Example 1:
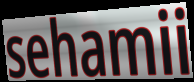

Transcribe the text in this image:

sehamii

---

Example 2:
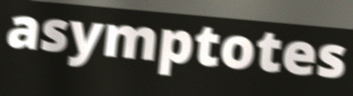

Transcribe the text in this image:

asymptotes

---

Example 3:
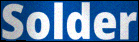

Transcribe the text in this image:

Solder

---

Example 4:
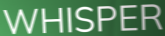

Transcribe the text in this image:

WHISPER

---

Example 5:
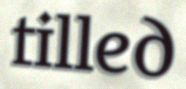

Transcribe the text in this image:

tilled